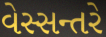
વેસ્સન્તરે